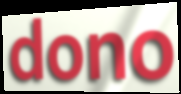
dono